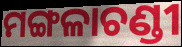
ମଙ୍ଗଳାଚଣ୍ଡୀ